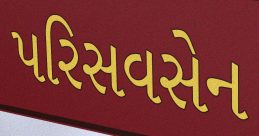
પરિસવસેન